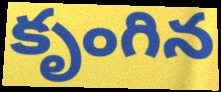
కృంగిన